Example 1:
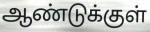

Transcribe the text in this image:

ஆண்டுக்குள்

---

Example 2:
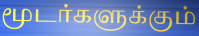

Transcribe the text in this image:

மூடர்களுக்கும்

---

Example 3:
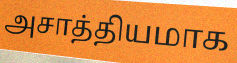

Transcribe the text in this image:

அசாத்தியமாக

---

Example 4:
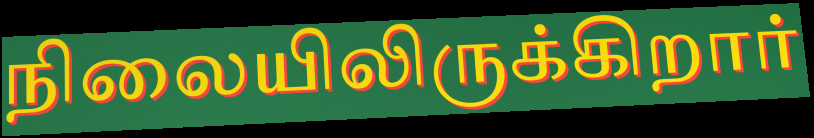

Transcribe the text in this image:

நிலையிலிருக்கிறார்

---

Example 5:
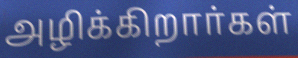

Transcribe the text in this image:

அழிக்கிறார்கள்